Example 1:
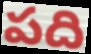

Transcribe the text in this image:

పది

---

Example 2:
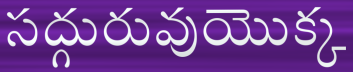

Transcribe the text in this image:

సద్గురువుయొక్క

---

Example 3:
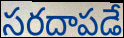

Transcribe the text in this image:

సరదాపడే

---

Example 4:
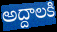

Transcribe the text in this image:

అద్దాలకి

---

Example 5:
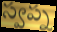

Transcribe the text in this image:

స్వప్న